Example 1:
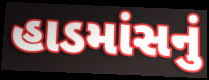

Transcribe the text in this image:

હાડમાંસનું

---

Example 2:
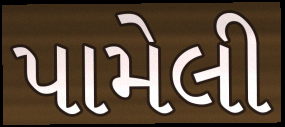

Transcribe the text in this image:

પામેલી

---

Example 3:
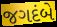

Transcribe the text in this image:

જગદંબે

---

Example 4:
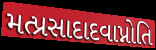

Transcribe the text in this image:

મત્પ્રસાદાદવાપ્નોતિ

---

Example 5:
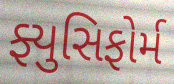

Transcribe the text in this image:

ફ્યુસિફોર્મ